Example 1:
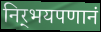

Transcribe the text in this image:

निर्भयपणानं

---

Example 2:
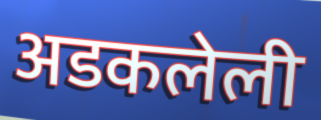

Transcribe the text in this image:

अडकलेली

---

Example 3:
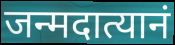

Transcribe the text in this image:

जन्मदात्यानं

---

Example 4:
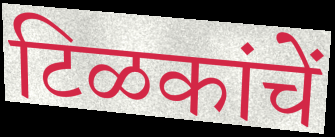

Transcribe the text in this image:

टिळकांचें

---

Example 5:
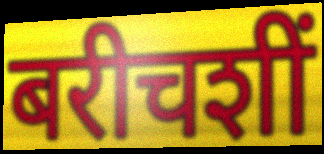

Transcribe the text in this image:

बरीचशीं